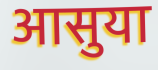
आसुया